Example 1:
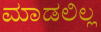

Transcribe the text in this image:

ಮಾಡಲಿಲ್ಲ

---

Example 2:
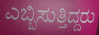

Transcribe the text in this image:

ಎಬ್ಬಿಸುತ್ತಿದ್ದರು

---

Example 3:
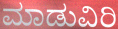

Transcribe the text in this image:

ಮಾಡುವಿರಿ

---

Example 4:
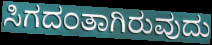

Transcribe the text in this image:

ಸಿಗದಂತಾಗಿರುವುದು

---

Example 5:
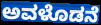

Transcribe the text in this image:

ಅವಳೊಡನೆ